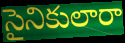
సైనికులారా